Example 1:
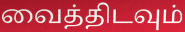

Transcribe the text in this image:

வைத்திடவும்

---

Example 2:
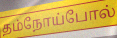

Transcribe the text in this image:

தம்நோய்போல்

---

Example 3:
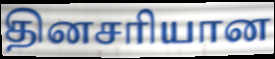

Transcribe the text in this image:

தினசரியான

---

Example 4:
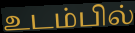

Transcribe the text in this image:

உடம்பில்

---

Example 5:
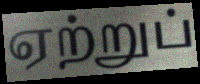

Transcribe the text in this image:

ஏற்றுப்